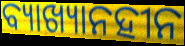
ବ୍ୟାଖ୍ୟାନହୀନ